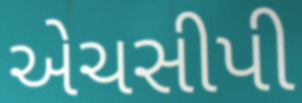
એચસીપી